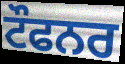
ਟੌਫਨਰ